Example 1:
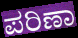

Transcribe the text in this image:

ಪರಿಣಾ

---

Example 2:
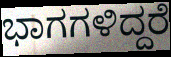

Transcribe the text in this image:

ಭಾಗಗಳಿದ್ದರೆ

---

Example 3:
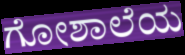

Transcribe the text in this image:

ಗೋಶಾಲೆಯ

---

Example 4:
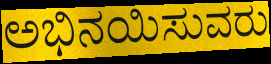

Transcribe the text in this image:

ಅಭಿನಯಿಸುವರು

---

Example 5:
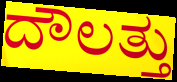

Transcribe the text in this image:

ದೌಲತ್ತು